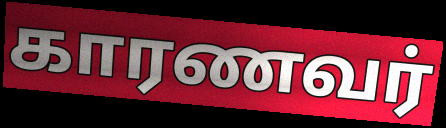
காரணவர்